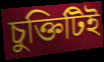
চুক্তিটিই